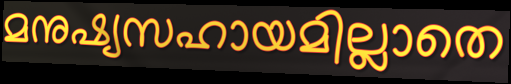
മനുഷ്യസഹായമില്ലാതെ